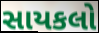
સાયકલો